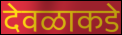
देवळाकडे